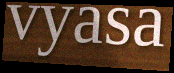
vyasa